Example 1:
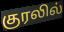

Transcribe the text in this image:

குரலில்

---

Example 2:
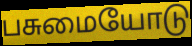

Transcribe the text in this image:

பசுமையோடு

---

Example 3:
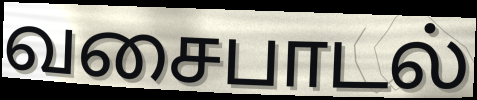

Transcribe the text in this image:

வசைபாடல்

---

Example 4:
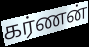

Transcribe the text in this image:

கர்ணன்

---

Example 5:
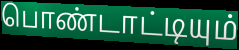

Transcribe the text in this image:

பொண்டாட்டியும்